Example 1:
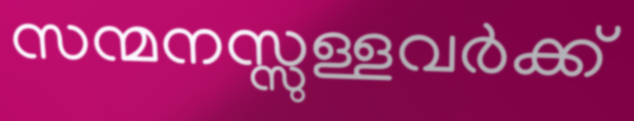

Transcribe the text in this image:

സന്മനസ്സുള്ളവർക്ക്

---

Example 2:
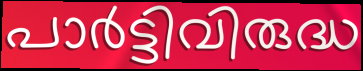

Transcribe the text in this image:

പാർട്ടിവിരുദ്ധ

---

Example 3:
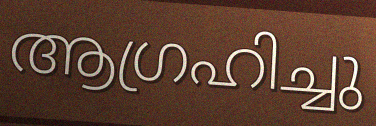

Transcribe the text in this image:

ആഗ്രഹിച്ചു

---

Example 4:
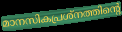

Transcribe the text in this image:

മാനസികപ്രശ്നത്തിന്റെ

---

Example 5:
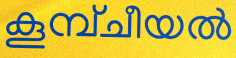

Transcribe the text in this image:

കൂമ്പ്ചീയൽ